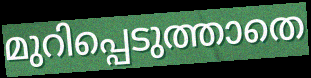
മുറിപ്പെടുത്താതെ